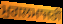
ਮੁਗਲਮਾਜਰੀ